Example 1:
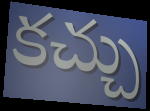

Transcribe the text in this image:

కచ్చు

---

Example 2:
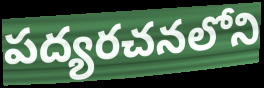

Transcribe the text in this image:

పద్యరచనలోని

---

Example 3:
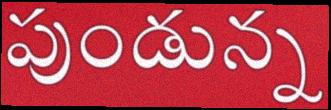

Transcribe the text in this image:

పుండున్న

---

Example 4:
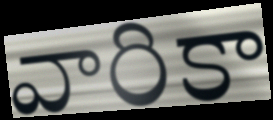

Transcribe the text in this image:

వారికా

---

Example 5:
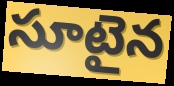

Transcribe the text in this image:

సూటైన